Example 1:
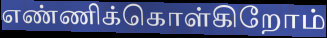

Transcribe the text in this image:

எண்ணிக்கொள்கிறோம்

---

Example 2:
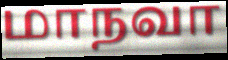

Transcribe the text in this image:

மாநவா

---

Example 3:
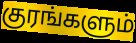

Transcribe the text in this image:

குரங்களும்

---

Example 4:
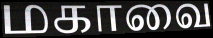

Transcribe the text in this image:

மகாவை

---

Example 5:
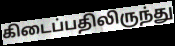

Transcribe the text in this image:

கிடைப்பதிலிருந்து